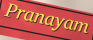
Pranayam